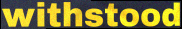
withstood